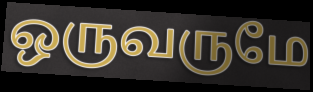
ஒருவருமே